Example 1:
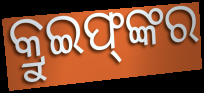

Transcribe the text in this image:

କ୍ରୁଇଫ୍‌ଙ୍କର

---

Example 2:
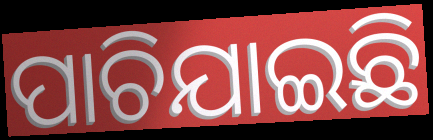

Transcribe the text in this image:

ପାଚିଯାଇଛି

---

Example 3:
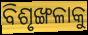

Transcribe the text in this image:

ବିଶୃଙ୍ଖଳାକୁ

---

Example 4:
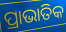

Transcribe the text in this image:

ପ୍ରାଭାତିକ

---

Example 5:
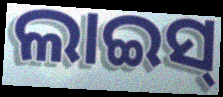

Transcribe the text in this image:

ଲାଇସ୍